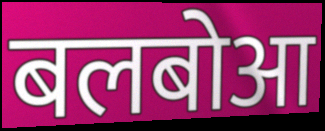
बलबोआ